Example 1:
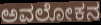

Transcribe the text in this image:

ಅವಲೋಕನ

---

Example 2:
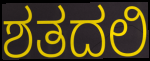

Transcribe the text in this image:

ಶತದಲಿ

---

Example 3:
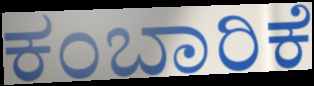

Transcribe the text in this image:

ಕಂಬಾರಿಕೆ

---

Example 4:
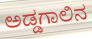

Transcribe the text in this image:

ಅಡ್ಡಗಾಲಿನ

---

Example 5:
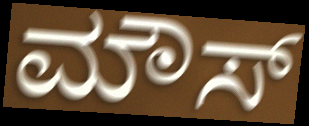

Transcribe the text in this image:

ಮೌಸ್